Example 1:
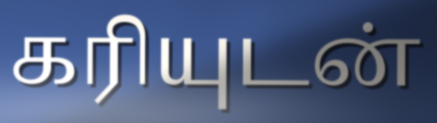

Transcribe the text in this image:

கரியுடன்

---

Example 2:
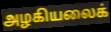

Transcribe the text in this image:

அழகியலைக்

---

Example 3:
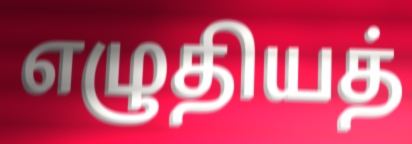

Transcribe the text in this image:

எழுதியத்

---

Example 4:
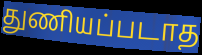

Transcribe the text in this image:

துணியப்படாத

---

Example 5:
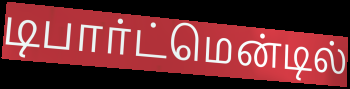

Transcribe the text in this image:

டிபார்ட்மென்டில்